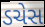
ડચેસ